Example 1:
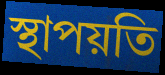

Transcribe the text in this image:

স্থাপয়তি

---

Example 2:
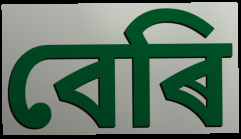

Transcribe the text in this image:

বেৰি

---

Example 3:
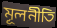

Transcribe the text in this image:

মূলনীতি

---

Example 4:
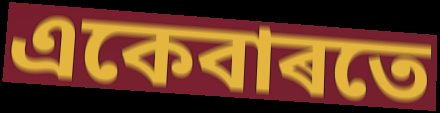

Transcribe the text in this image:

একেবাৰতে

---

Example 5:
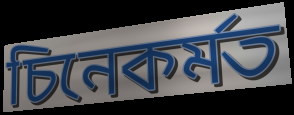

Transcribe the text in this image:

চিনেকৰ্মত